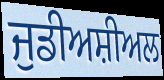
ਜੁਡੀਅਸ਼ੀਅਲ